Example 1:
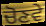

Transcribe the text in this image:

ਚੋਣਵੇ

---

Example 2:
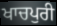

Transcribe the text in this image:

ਖਾਚਪੁਰੀ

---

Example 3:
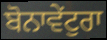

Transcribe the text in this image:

ਬੋਨਾਵੇਂਟੁਰਾ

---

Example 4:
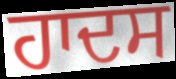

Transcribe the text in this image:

ਹਾਦਸ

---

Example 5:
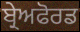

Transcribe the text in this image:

ਬ੍ਰੇਅਫੋਰਡ